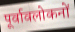
पूर्वावलोकनों